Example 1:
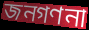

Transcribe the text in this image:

জনগণনা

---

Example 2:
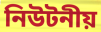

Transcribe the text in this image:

নিউটনীয়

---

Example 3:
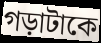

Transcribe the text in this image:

গড়াটাকে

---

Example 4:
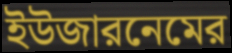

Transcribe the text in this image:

ইউজারনেমের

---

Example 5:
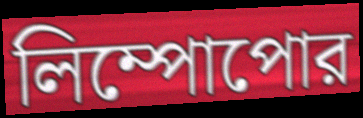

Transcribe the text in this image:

লিম্পোপোর